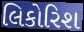
લિકોરિશ